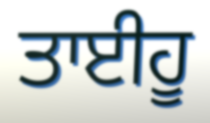
ਤਾਈਹੂ